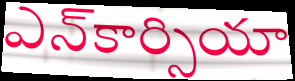
ఎన్‌కార్సియా